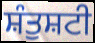
ਸ਼ੰਤੁਸ਼ਟੀ